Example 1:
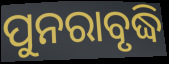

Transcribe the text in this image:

ପୁନରାବୃଦ୍ଧି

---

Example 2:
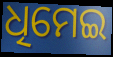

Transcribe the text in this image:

ଧିମେଇ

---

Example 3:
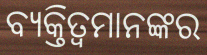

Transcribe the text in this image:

ବ୍ୟକ୍ତିତ୍ୱମାନଙ୍କର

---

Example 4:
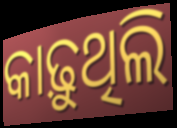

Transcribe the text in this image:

କାଢ଼ୁଥିଲି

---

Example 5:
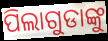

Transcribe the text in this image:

ପିଲାଗୁଡାଙ୍କୁ